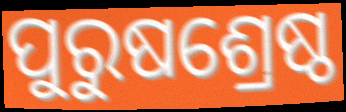
ପୁରୁଷଶ୍ରେଷ୍ଠ